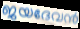
ജയദേവൻ